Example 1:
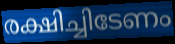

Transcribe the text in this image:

രക്ഷിച്ചിടേണം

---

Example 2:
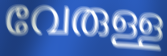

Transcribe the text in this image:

വേരുള്ള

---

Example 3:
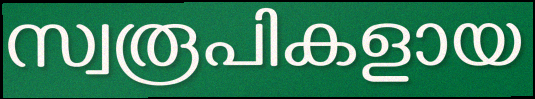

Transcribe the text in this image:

സ്വരൂപികളായ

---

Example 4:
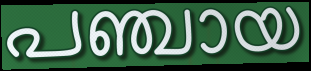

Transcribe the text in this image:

പഞ്ചായ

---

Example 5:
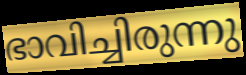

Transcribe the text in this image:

ഭാവിച്ചിരുന്നു